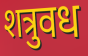
शत्रुवध